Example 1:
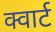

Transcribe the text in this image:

क्वार्ट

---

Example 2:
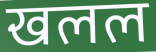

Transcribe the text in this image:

खलल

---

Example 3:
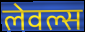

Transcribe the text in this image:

लेवल्स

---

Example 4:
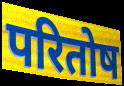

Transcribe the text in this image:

परितोष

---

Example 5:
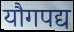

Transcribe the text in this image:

यौगपद्य